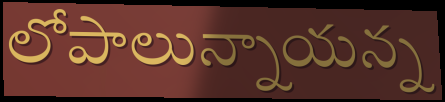
లోపాలున్నాయన్న